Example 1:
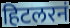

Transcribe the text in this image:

हिटलरनं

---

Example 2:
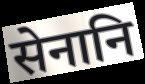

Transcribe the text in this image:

सेनानि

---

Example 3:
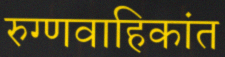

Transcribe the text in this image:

रुग्णवाहिकांत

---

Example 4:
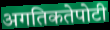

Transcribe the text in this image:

अगतिकतेपोटी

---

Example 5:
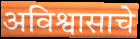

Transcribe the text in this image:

अविश्वासाचे